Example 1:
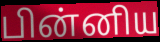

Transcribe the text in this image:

பின்னிய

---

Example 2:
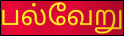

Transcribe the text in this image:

பல்வேறு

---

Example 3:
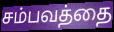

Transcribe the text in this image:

சம்பவத்தை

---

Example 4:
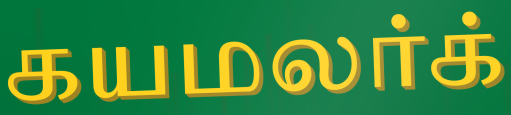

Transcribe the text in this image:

கயமலர்க்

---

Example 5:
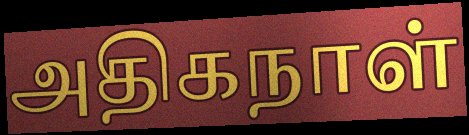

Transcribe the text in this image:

அதிகநாள்